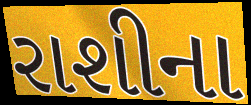
રાશીના